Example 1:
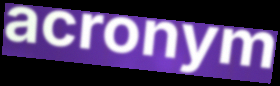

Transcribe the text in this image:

acronym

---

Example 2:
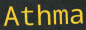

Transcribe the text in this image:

Athma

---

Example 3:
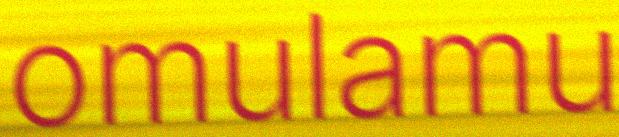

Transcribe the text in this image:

omulamu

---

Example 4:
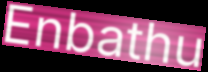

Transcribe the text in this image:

Enbathu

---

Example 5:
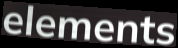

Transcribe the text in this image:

elements